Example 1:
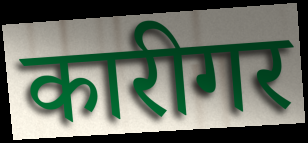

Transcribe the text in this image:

कारीगर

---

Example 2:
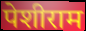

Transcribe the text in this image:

पेशीराम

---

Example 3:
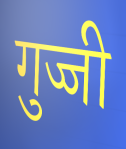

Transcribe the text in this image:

गुज्जी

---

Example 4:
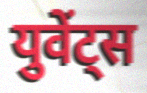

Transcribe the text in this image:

युवेंट्स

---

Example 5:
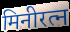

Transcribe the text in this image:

मिनीरत्न